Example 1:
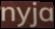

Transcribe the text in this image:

nyja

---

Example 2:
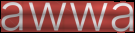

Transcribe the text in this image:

awwa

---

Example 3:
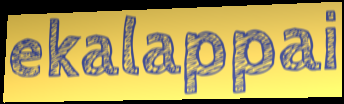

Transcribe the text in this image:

ekalappai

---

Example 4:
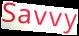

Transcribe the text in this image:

Savvy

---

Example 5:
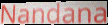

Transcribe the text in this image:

Nandana